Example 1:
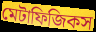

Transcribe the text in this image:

মেটাফিজিকস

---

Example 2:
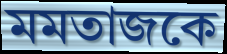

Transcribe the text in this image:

মমতাজকে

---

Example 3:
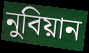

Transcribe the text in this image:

নুবিয়ান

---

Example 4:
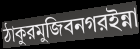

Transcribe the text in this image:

ঠাকুরমুজিবনগরইন্না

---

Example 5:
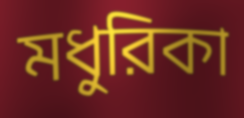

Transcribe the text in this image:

মধুরিকা